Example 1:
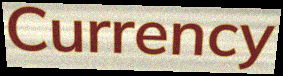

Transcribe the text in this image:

Currency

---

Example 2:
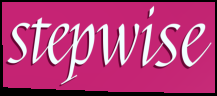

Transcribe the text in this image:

stepwise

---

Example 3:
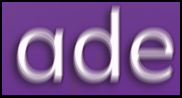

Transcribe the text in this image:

ade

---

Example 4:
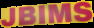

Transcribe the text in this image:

JBIMS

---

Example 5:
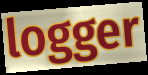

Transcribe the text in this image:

logger